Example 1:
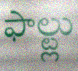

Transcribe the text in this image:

ఫాల్ట్లు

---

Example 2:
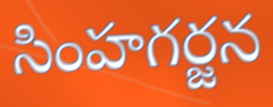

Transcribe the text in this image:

సింహగర్జన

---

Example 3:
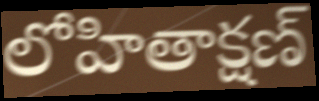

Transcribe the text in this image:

లోహితాక్షణ్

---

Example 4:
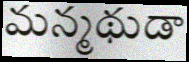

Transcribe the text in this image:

మన్మథుడా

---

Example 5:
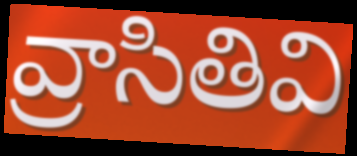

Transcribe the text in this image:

వ్రాసితివి